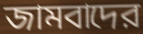
জামবাদের